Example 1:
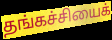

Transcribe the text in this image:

தங்கச்சியைக்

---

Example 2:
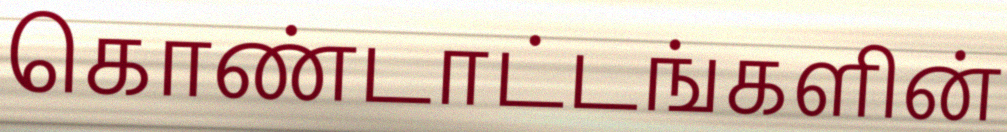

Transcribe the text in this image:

கொண்டாட்டங்களின்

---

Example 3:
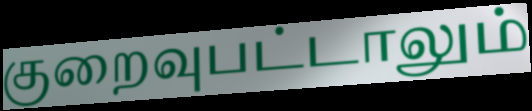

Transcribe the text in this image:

குறைவுபட்டாலும்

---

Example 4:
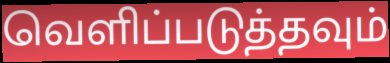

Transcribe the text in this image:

வெளிப்படுத்தவும்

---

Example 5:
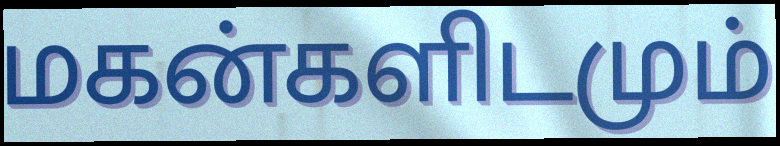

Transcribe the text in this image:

மகன்களிடமும்